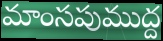
మాంసపుముద్ద